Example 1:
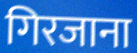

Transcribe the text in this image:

गिरजाना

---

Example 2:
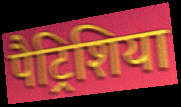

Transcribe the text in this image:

पैट्रिशिया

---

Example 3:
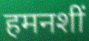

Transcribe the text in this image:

हमनशीं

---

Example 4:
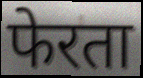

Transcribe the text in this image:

फेरता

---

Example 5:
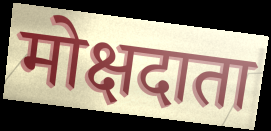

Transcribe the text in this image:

मोक्षदाता